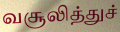
வசூலித்துச்